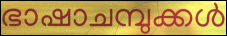
ഭാഷാചമ്പുക്കൾ